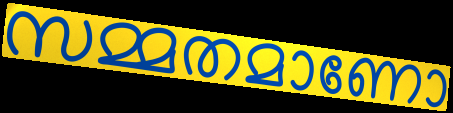
സമ്മതമാണോ